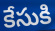
కేసుకి